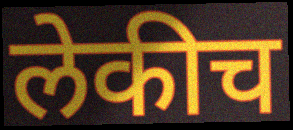
लेकीच